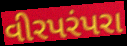
વીરપરંપરા